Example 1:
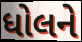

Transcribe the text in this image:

ધોલને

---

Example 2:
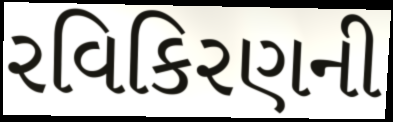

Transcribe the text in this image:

રવિકિરણની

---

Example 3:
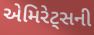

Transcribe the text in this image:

એમિરેટ્સની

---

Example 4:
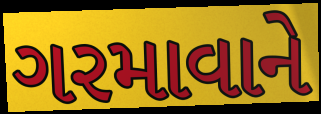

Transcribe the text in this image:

ગરમાવાને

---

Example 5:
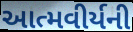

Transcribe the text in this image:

આત્મવીર્યની